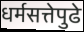
धर्मसत्तेपुढे